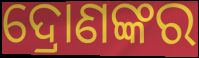
ଦ୍ରୋଣଙ୍କର